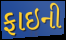
ફાઇની